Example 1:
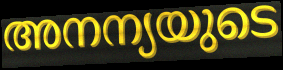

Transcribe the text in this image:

അനന്യയുടെ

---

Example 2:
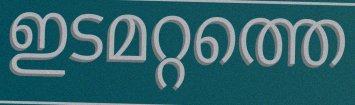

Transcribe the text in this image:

ഇടമറ്റത്തെ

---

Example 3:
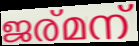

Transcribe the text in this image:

ജര്മന്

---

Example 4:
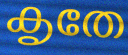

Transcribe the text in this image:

കൃതേ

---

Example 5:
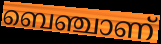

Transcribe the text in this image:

ബെഞ്ചാണ്